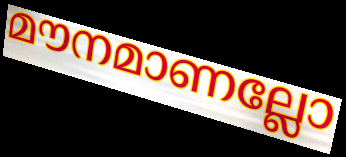
മൗനമാണല്ലോ